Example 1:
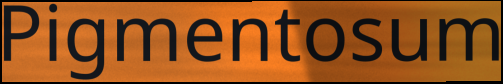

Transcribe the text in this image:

Pigmentosum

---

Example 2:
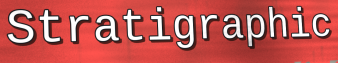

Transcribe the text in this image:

Stratigraphic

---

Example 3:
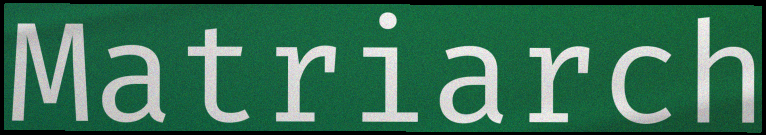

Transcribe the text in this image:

Matriarch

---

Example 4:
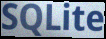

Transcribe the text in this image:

SQLite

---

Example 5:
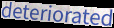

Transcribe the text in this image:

deteriorated